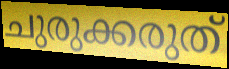
ചുരുക്കരുത്